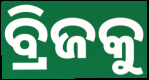
ବ୍ରିଜକୁ